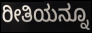
ರೀತಿಯನ್ನೂ